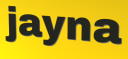
jayna